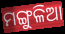
ମଙ୍ଗୁଳିଆ